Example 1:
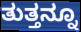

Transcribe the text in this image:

ತುತ್ತನ್ನೂ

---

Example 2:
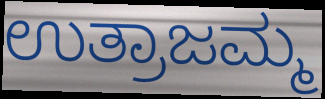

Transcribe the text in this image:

ಉತ್ರಾಜಮ್ಮ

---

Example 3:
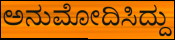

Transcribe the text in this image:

ಅನುಮೋದಿಸಿದ್ದು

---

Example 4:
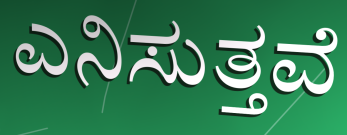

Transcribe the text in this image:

ಎನಿಸುತ್ತವೆ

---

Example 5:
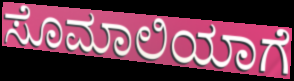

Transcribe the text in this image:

ಸೊಮಾಲಿಯಾಗೆ